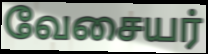
வேசையர்